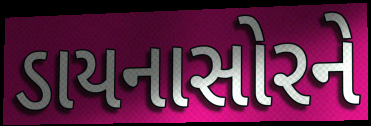
ડાયનાસોરને